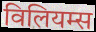
विलियम्स